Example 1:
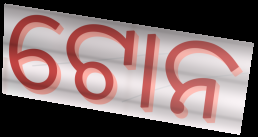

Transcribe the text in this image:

ଟୋନ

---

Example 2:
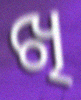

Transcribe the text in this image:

ଖି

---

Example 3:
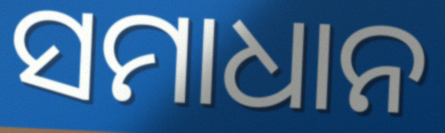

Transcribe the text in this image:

ସମାଧାନ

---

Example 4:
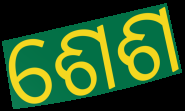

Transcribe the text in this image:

ଶେଶ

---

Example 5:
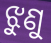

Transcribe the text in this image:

ଝୁଣୁ